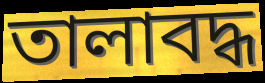
তালাবদ্ধ